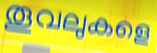
തൂവലുകളെ